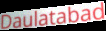
Daulatabad